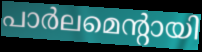
പാർലമെന്റായി